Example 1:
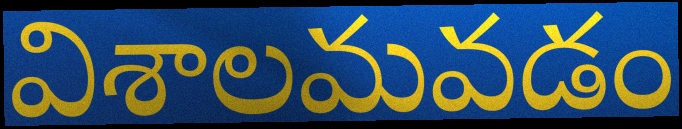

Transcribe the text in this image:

విశాలమవడం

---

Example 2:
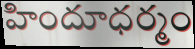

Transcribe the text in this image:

హిందూధర్మం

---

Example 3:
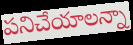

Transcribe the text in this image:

పనిచేయాలన్నా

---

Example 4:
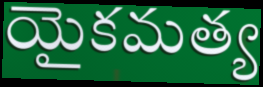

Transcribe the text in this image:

యైకమత్య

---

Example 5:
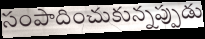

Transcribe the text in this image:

సంపాదించుకున్నప్పుడు